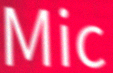
Mic